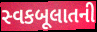
સ્વકબૂલાતની